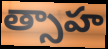
త్సాహ